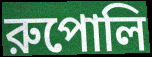
রুপোলি